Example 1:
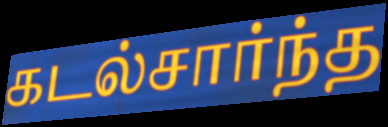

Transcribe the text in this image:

கடல்சார்ந்த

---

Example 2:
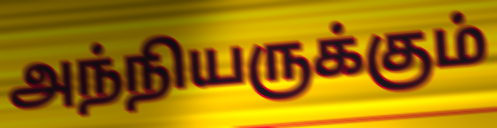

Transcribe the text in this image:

அந்நியருக்கும்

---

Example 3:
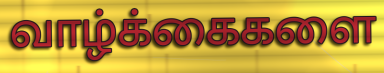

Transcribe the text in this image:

வாழ்க்கைகளை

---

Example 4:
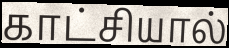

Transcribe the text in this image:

காட்சியால்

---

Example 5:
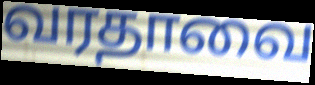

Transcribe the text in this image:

வரதாவை